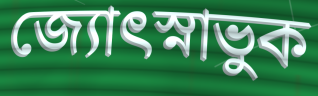
জ্যোৎস্নাভুক